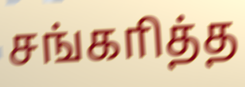
சங்கரித்த